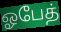
ஓபேத்